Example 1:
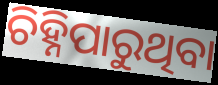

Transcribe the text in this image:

ଚିହ୍ନିପାରୁଥିବା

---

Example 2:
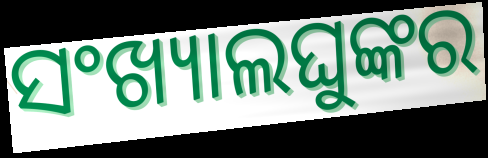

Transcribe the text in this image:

ସଂଖ୍ୟାଲଘୁଙ୍କର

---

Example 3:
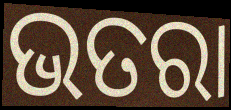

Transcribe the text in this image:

ଭତରା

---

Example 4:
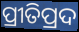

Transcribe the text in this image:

ପ୍ରୀତିପ୍ରଦ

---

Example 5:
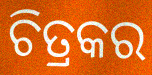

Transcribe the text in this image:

ଚିତ୍ରକର